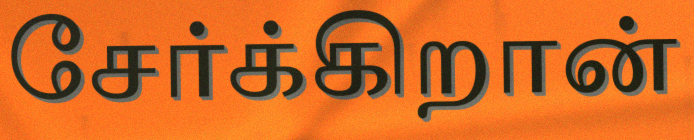
சேர்க்கிறான்